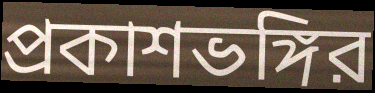
প্রকাশভঙ্গির